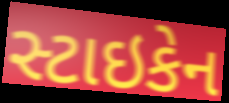
સ્ટાઇકેન